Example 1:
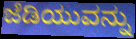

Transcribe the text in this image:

ಜೆಡಿಯುವನ್ನು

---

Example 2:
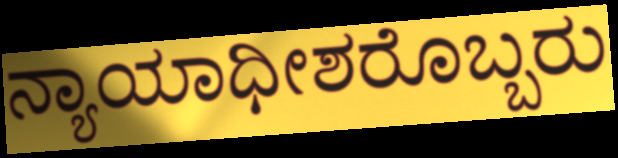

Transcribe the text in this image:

ನ್ಯಾಯಾಧೀಶರೊಬ್ಬರು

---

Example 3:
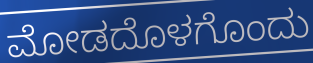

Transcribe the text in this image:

ಮೋಡದೊಳಗೊಂದು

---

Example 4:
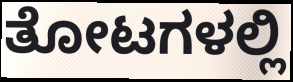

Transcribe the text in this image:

ತೋಟಗಳಲ್ಲಿ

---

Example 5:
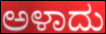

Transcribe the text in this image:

ಅಳಾದು